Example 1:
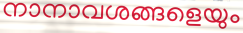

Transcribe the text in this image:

നാനാവശങ്ങളെയും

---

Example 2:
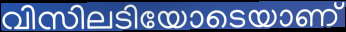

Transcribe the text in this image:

വിസിലടിയോടെയാണ്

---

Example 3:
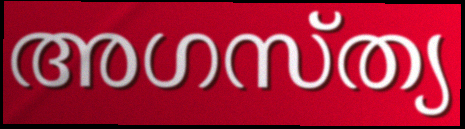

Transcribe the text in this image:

അഗസ്ത്യ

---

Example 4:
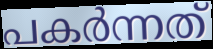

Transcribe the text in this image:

പകർന്നത്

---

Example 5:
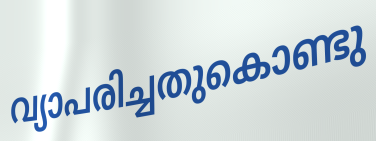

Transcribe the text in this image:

വ്യാപരിച്ചതുകൊണ്ടു